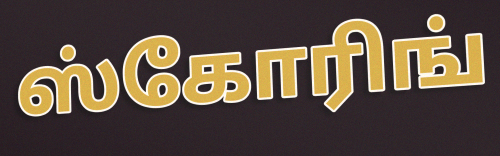
ஸ்கோரிங்